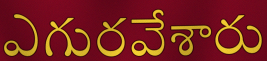
ఎగురవేశారు